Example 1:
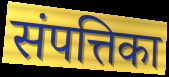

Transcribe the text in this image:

संपत्तिका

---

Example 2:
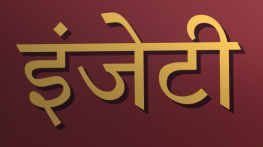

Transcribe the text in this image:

इंजेटी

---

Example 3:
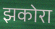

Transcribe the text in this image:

झकोरा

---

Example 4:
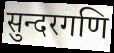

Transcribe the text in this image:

सुन्दरगणि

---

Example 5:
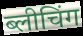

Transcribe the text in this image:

ब्‍लीचिंग